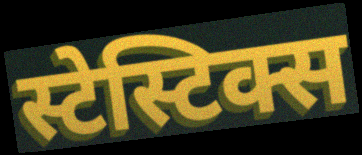
स्टेस्टिक्स